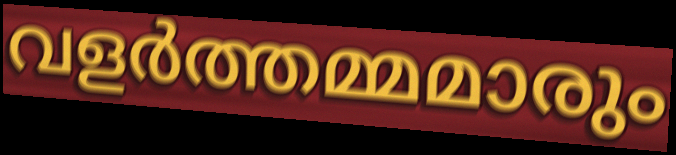
വളർത്തമ്മമാരും